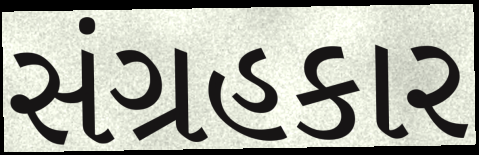
સંગ્રહકાર